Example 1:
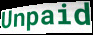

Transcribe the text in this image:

Unpaid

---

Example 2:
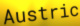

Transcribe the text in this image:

Austric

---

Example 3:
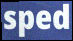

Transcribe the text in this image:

sped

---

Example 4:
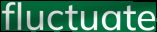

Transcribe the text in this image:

fluctuate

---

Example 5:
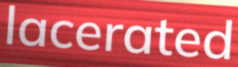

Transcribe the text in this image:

lacerated